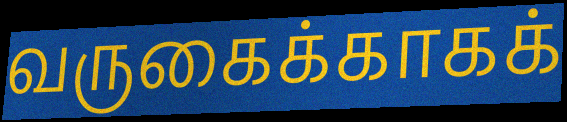
வருகைக்காகக்